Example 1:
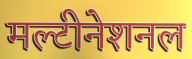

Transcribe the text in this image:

मल्टीनेशनल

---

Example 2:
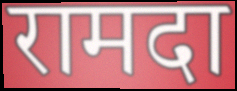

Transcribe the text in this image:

रामदा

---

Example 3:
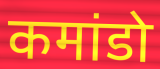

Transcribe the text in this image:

कमांडो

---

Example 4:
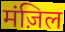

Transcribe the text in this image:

मंज़िल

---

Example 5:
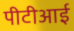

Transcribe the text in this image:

पीटीआई